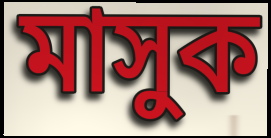
মাসুক